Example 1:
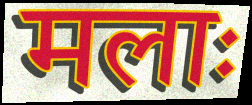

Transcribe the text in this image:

मलाः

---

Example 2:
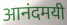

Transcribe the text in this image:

आनंदमयी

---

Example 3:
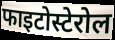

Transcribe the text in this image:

फाइटोस्टेरोल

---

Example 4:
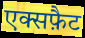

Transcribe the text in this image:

एक्सफ़ैट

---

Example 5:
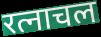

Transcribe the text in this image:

रत्नाचल